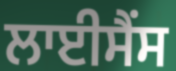
ਲਾਈਸੈਂਸ